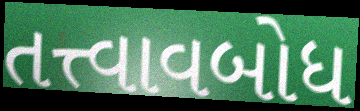
તત્ત્વાવબોધ